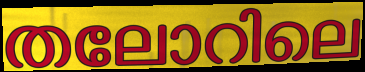
തലോറിലെ